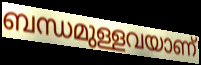
ബന്ധമുള്ളവയാണ്